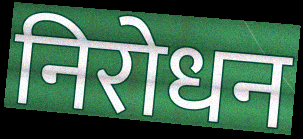
निरोधन